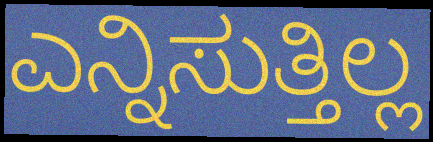
ಎನ್ನಿಸುತ್ತಿಲ್ಲ